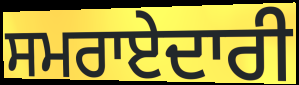
ਸਮਰਾਏਦਾਰੀ